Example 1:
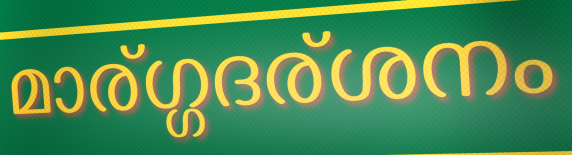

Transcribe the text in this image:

മാര്ഗ്ഗദര്ശനം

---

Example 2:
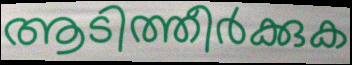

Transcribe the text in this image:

ആടിത്തീർക്കുക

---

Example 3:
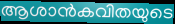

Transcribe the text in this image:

ആശാൻകവിതയുടെ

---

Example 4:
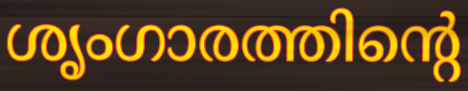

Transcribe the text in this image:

ശൃംഗാരത്തിന്റെ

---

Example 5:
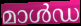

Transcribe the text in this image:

മാൾഡ